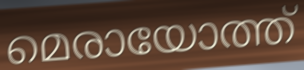
മെരായോത്ത്